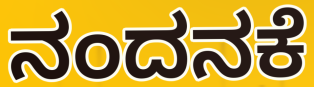
ನಂದನಕೆ